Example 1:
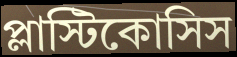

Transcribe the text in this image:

প্লাস্টিকোসিস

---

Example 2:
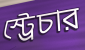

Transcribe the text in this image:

স্ট্রেচার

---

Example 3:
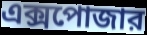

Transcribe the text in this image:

এক্সপোজার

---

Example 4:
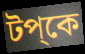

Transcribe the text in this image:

টপ্কে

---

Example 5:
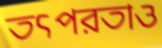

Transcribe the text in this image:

তৎপরতাও